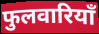
फुलवारियाँ